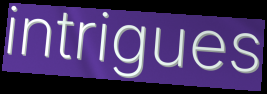
intrigues